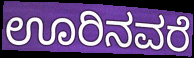
ಊರಿನವರೆ